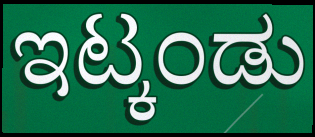
ಇಟ್ಕಂಡು